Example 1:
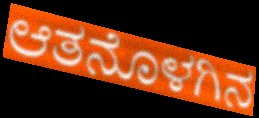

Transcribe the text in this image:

ಆತನೊಳಗಿನ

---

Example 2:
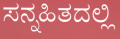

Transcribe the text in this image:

ಸನ್ನಹಿತದಲ್ಲಿ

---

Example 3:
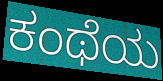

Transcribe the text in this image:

ಕಂಥೆಯ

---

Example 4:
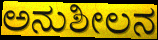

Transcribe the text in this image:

ಅನುಶೀಲನ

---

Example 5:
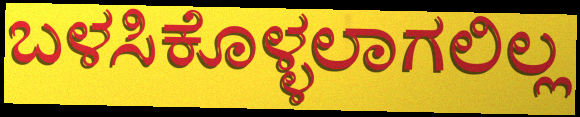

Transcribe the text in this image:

ಬಳಸಿಕೊಳ್ಳಲಾಗಲಿಲ್ಲ